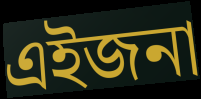
এইজনা